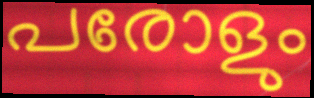
പരോളും